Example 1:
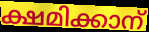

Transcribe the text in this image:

ക്ഷമിക്കാന്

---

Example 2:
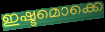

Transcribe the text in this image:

ഇഷ്ടമൊക്കെ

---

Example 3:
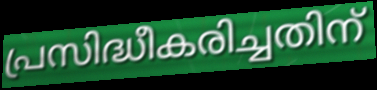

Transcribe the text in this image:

പ്രസിദ്ധീകരിച്ചതിന്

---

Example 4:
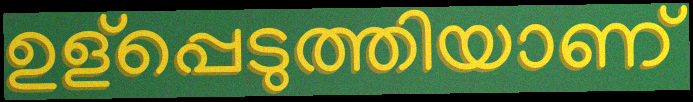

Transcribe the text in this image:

ഉള്പ്പെടുത്തിയാണ്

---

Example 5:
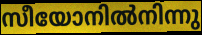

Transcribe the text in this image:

സീയോനിൽനിന്നു